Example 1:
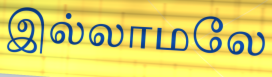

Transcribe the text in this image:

இல்லாமலே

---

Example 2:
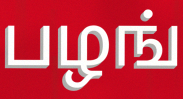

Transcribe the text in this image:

பழங்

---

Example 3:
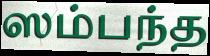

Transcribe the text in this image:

ஸம்பந்த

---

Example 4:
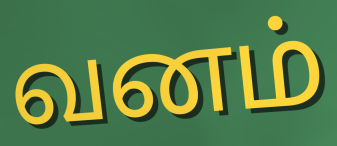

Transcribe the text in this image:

வனம்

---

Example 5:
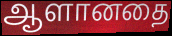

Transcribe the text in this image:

ஆளானதை